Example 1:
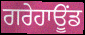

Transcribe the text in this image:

ਗਰੇਹਾਊਂਡ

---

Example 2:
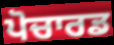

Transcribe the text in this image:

ਪੋਚਾਰਡ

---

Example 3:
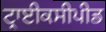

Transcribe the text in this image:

ਟ੍ਰਾਈਕਸੀਪੀਡ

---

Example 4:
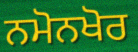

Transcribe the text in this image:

ਨਮੋਨਖੋਰ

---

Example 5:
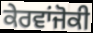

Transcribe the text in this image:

ਕੇਰਵਾਂਜੋਕੀ